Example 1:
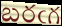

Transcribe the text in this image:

బరఁగ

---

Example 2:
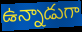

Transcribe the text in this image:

ఉన్నాడుగా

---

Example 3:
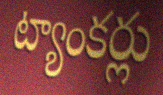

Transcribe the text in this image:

ట్యాంకర్లు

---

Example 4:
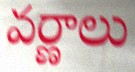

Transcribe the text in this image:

వర్ణాలు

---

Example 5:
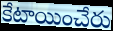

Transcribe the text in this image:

కేటాయించేరు